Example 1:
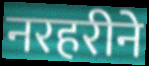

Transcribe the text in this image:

नरहरीने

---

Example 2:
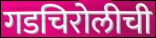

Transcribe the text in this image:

गडचिरोलीची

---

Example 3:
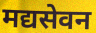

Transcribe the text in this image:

मद्यसेवन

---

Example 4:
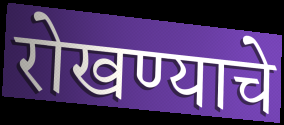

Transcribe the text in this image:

रोखण्याचे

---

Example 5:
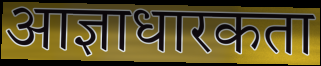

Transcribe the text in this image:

आज्ञाधारकता